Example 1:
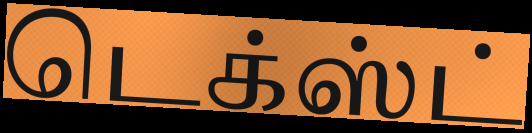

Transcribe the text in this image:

டெக்ஸ்ட்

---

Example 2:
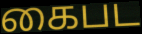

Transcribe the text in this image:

கைபட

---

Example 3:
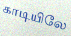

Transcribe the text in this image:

காடியிலே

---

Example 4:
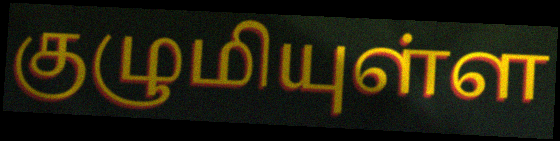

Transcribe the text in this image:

குழுமியுள்ள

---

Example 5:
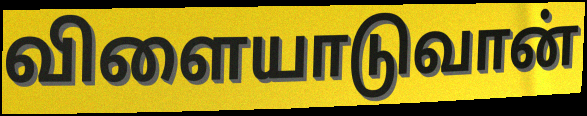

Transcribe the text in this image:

விளையாடுவான்